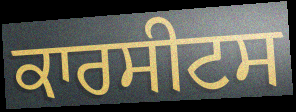
ਕਾਰਸੀਟਸ